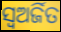
ସ୍ୱଅର୍ଜିତ